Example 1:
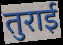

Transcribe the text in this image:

तुराई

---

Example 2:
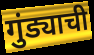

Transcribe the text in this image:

गुंड्याची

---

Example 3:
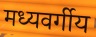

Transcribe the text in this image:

मध्यवर्गीय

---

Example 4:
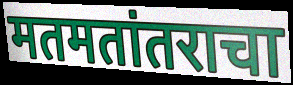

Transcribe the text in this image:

मतमतांतराचा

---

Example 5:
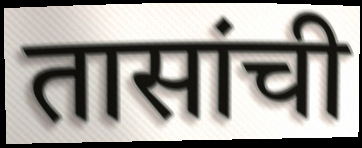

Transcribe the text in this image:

तासांची